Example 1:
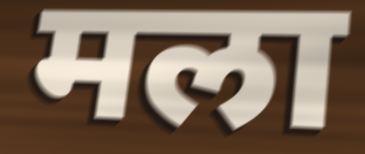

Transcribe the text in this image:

मला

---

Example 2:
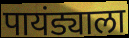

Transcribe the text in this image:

पायंड्याला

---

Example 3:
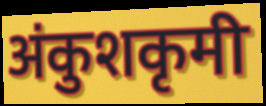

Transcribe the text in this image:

अंकुशकृमी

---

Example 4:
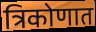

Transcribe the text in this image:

त्रिकोणात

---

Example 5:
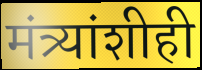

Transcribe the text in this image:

मंत्र्यांशीही